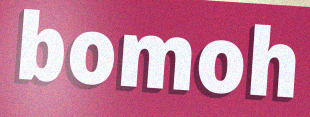
bomoh